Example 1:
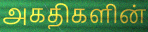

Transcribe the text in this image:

அகதிகளின்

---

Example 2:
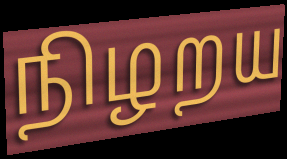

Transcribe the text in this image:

நிழறய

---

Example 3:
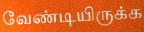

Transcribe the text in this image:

வேண்டியிருக்க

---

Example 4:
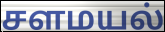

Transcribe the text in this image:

சளமயல்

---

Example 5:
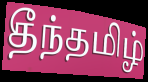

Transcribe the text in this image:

தீந்தமிழ்